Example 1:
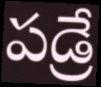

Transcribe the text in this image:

పడ్రే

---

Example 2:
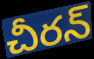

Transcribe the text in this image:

చీరన్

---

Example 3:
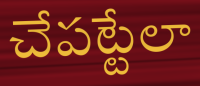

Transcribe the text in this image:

చేపట్టేలా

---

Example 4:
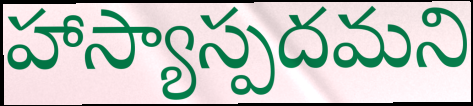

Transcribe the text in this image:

హాస్యాస్పదమని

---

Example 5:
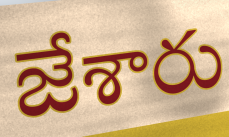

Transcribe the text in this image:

జేశారు